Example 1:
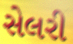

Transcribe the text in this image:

સેલરી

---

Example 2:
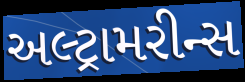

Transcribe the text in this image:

અલ્ટ્રામરીન્સ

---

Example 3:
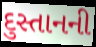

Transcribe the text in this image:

દુસ્તાનની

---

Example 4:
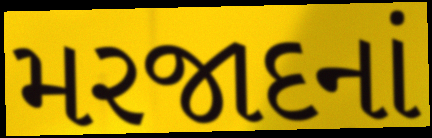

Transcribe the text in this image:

મરજાદનાં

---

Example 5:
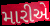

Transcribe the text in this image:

મારીએ